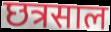
छत्रसाल